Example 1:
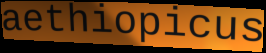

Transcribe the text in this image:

aethiopicus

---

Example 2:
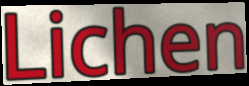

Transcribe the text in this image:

Lichen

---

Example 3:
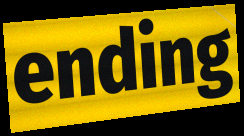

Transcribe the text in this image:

ending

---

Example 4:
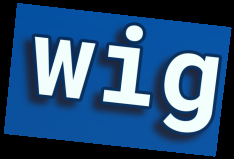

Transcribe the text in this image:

wig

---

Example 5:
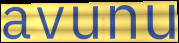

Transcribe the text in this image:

avunu